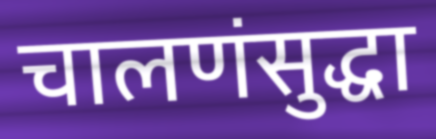
चालणंसुद्धा